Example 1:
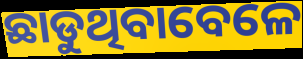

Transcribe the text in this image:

ଛାଡୁଥିବାବେଳେ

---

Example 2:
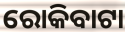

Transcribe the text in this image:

ରୋକିବାଟା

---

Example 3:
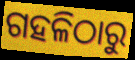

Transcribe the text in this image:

ଗହଳିଠାରୁ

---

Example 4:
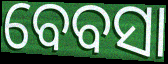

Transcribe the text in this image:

ବେବସା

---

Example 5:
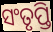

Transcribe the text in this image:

ସଂତୃପ୍ତି